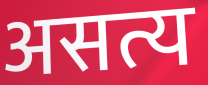
असत्य